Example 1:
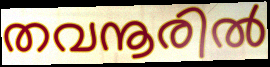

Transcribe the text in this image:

തവനൂരിൽ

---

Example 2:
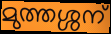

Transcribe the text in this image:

മുത്തശ്ശന്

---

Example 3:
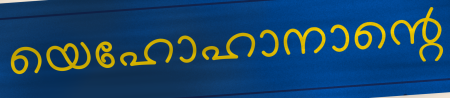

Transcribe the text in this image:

യെഹോഹാനാന്റെ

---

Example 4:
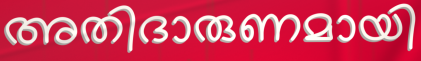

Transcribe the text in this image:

അതിദാരുണമായി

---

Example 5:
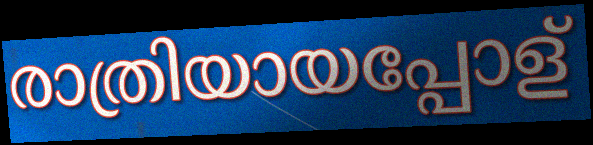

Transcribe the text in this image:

രാത്രിയായപ്പോള്